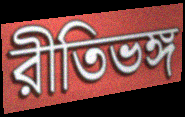
রীতিভঙ্গ